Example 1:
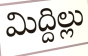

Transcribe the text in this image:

మిద్దిల్లు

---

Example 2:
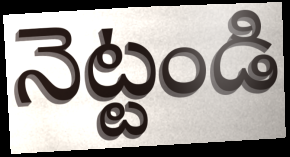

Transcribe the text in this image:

నెట్టండి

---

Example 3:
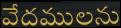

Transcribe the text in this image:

వేదములను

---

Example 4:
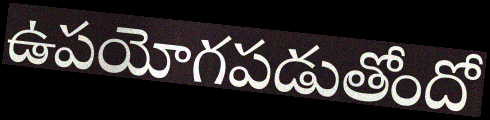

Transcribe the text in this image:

ఉపయోగపడుతోందో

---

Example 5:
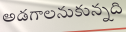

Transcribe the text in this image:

అడగాలనుకున్నది